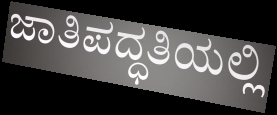
ಜಾತಿಪದ್ಧತಿಯಲ್ಲಿ